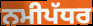
ਨਮੀਪੱਧਰ